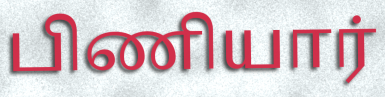
பிணியார்